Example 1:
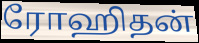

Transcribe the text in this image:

ரோஹிதன்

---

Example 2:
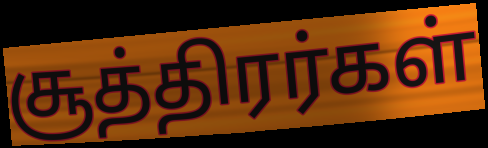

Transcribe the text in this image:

சூத்திரர்கள்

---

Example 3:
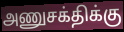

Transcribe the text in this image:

அணுசக்திக்கு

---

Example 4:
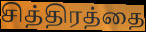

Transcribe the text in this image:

சித்திரத்தை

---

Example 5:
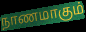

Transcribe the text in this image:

நாணமாகும்